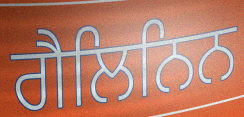
ਗੈਲਿਨਿਨ